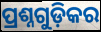
ପ୍ରଶ୍ନଗୁଡ଼ିକର